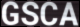
GSCA